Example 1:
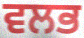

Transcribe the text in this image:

ਵਲਭ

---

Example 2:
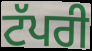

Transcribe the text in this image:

ਟੱਪਰੀ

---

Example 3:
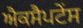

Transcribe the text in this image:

ਐਕਸੈਪਟੇਂਸ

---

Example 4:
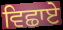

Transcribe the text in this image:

ਵਿਛਾਏ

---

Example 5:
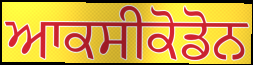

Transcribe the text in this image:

ਆਕਸੀਕੋਡੋਨ